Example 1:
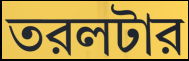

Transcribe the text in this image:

তরলটার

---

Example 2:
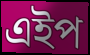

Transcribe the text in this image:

এইপ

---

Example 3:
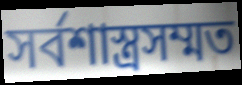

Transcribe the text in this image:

সর্বশাস্ত্রসম্মত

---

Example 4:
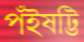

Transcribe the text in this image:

পঁইষট্টি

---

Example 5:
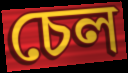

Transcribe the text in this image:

চেল